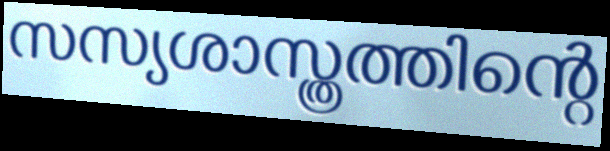
സസ്യശാസ്ത്രത്തിന്റെ